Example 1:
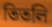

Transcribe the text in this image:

তিতলি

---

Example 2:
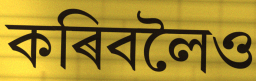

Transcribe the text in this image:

কৰিবলৈও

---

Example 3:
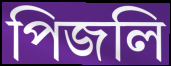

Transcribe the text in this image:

পিজলি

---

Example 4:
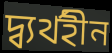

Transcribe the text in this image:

দ্ব্যৰ্থহীন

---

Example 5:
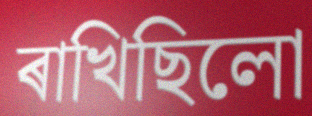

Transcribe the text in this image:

ৰাখিছিলো